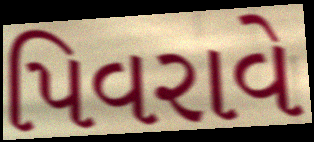
પિવરાવે